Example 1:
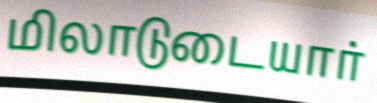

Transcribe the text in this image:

மிலாடுடையார்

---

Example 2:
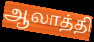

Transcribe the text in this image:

ஆலாத்தி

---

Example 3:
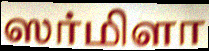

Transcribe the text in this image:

ஸர்மிளா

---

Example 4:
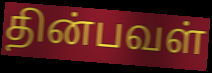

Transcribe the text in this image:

தின்பவள்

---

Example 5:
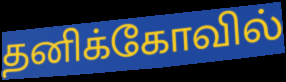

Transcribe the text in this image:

தனிக்கோவில்